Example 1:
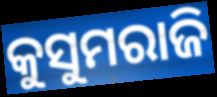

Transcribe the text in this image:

କୁସୁମରାଜି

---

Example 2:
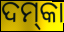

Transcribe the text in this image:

ଦମ୍‌କା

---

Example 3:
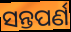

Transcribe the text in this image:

ସନ୍ତପର୍ଣ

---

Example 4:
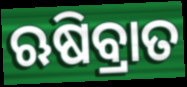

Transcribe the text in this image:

ଋଷିବ୍ରାତ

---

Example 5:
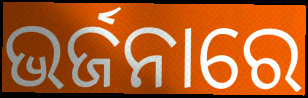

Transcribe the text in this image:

ଭର୍ଜନାରେ